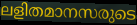
ലളിതമാനസരുടെ